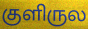
குளிருல